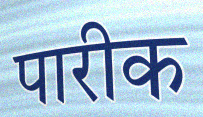
पारीक